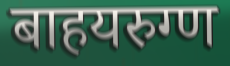
बाहयरुग्ण